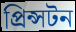
প্ৰিন্সটন